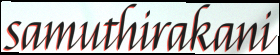
samuthirakani